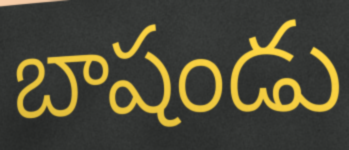
బాషండు